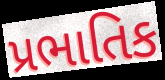
પ્રભાતિક